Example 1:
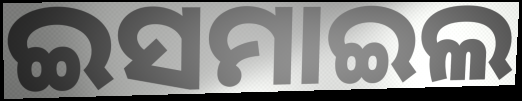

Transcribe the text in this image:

ଇସମାଇଲ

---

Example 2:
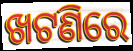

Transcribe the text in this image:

ଖଟଣିରେ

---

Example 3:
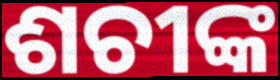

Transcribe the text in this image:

ଶଚୀଙ୍କ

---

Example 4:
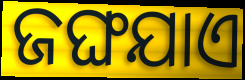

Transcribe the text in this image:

ଜଙ୍ଘଯାଏ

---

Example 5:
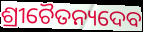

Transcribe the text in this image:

ଶ୍ରୀଚୈତନ୍ୟଦେବ